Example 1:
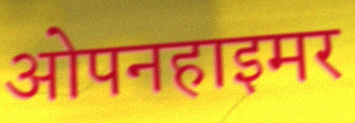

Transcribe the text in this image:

ओपनहाइमर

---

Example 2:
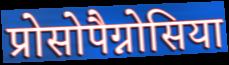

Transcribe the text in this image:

प्रोसोपैग्नोसिया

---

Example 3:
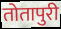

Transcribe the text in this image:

तोतापुरी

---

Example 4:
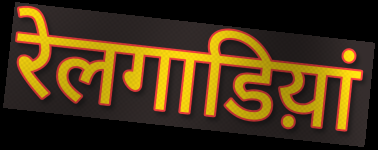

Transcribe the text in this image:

रेलगाडिय़ां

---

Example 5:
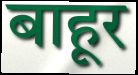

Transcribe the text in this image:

बाहूर